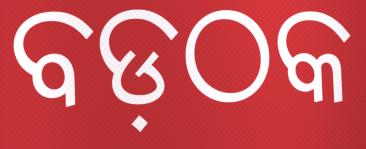
ବଡ଼ଠକ